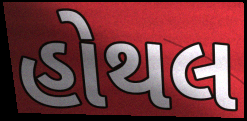
હોથલ